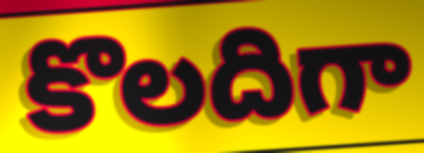
కొలదిగా